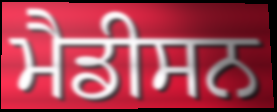
ਮੈਡੀਸਨ